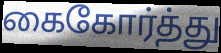
கைகோர்த்து